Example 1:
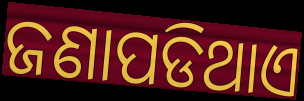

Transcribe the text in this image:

ଜଣାପଡିଥାଏ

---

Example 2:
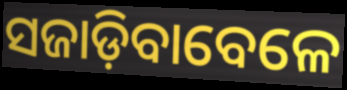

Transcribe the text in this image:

ସଜାଡ଼ିବାବେଳେ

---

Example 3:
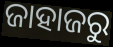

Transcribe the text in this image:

ଜାହାଜରୁ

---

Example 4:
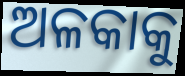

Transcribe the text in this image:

ଅଳକାକୁ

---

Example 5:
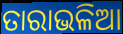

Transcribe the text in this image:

ତାରାଭଳିଆ